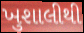
ખુશાલીથી